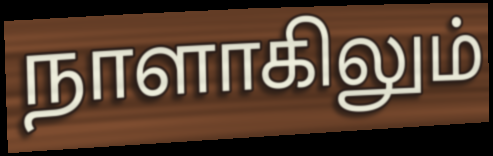
நாளாகிலும்